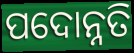
ପଦୋନ୍ନତି